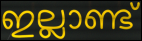
ഇല്ലാണ്ട്